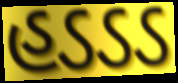
હડડડ